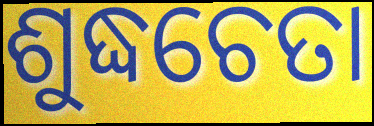
ଶୁଦ୍ଧଚେତା